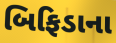
બિફિડાના